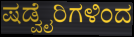
ಷಡ್ವೈರಿಗಳಿಂದ